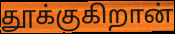
தூக்குகிறான்